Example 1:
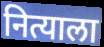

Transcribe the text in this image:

नित्याला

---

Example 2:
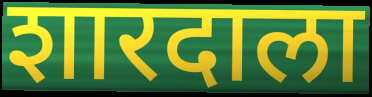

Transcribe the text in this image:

शारदाला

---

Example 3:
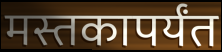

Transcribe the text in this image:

मस्तकापर्यंत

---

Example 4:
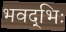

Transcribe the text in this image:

भवद्‌भिः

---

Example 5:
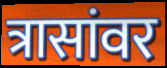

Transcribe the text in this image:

त्रासांवर